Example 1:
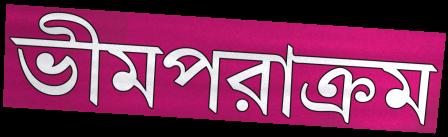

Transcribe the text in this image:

ভীমপরাক্রম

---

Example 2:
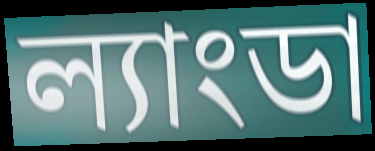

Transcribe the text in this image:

ল্যাংডা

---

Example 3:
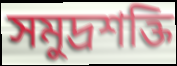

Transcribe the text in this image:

সমুদ্রশক্তি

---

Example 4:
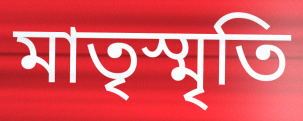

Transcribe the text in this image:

মাতৃস্মৃতি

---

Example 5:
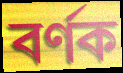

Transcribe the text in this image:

বর্ণক